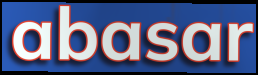
abasar